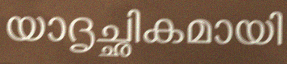
യാദൃച്ഛികമായി